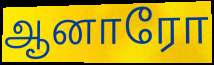
ஆனாரோ